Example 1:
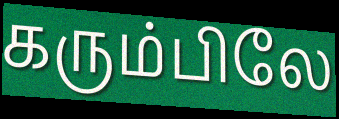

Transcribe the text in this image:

கரும்பிலே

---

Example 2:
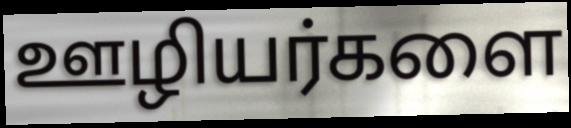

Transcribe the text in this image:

ஊழியர்களை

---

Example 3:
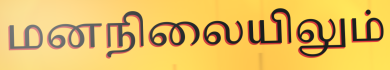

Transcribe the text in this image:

மனநிலையிலும்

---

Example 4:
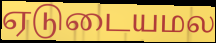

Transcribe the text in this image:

ஏடுடையமல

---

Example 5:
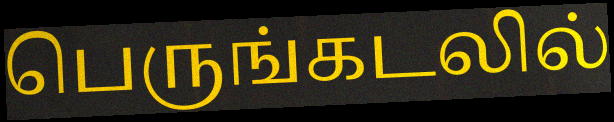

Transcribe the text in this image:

பெருங்கடலில்